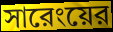
সারেংয়ের